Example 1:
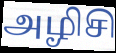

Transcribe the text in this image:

அழிசி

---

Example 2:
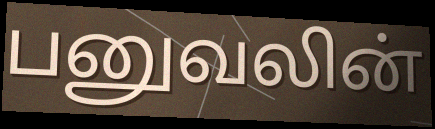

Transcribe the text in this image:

பனுவலின்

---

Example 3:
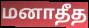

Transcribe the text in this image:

மனாதீத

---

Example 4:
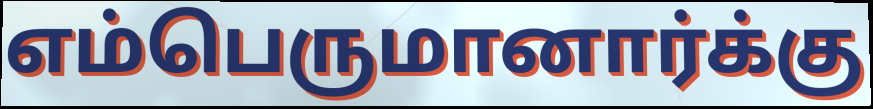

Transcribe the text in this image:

எம்பெருமானார்க்கு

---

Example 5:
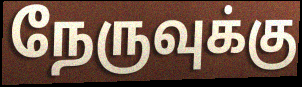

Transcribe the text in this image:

நேருவுக்கு